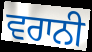
ਵਰਾਨੀ